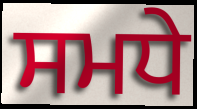
ਸਮਧੇ